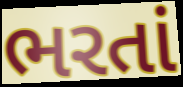
ભરતાં